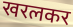
खरलकर